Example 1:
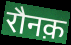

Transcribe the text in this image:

रौनक़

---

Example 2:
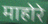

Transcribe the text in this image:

माहोरे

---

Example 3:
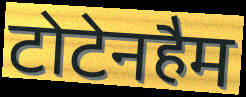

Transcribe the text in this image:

टोटेनहैम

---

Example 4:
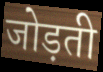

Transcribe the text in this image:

जोड़ती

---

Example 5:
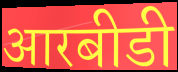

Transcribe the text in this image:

आरबीडी